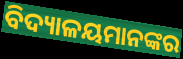
ବିଦ୍ୟାଳୟମାନଙ୍କର